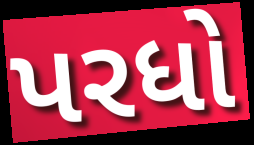
પરધો